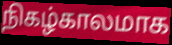
நிகழ்காலமாக